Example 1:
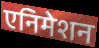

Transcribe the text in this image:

एनिमेशन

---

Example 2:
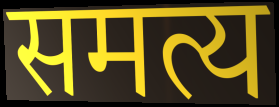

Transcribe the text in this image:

समत्य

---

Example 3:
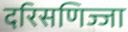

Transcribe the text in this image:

दरिसणिज्जा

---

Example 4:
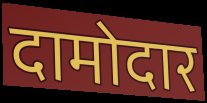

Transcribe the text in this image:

दामोदार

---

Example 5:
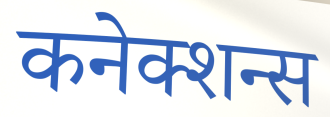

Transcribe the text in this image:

कनेक्शन्स